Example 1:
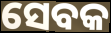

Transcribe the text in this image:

ସେବକ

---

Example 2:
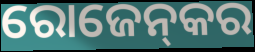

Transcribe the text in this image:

ରୋଜେନ୍‌କର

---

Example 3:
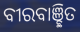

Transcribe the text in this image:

ବୀରବାଞ୍ଛିତ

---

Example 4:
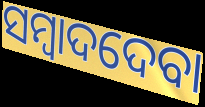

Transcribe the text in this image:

ସମ୍ବାଦଦେବା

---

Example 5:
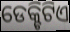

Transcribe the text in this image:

ଡେକ୍ଚିଟିଏ